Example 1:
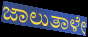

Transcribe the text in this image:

ಜಾಲುತಾಳೇ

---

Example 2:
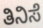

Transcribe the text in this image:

ತಿನಿಸೆ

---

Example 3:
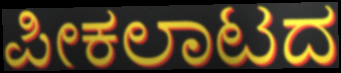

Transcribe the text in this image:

ಪೀಕಲಾಟದ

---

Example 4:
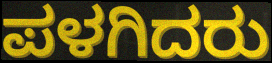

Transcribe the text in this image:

ಪಳಗಿದರು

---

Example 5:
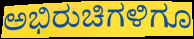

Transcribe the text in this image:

ಅಭಿರುಚಿಗಳಿಗೂ